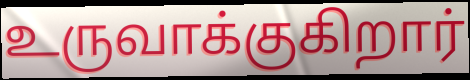
உருவாக்குகிறார்